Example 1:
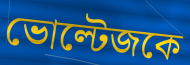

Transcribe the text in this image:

ভোল্টেজকে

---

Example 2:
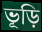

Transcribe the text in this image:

ভূড়ি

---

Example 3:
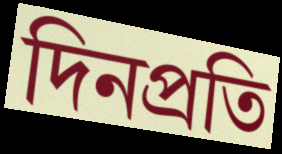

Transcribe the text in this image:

দিনপ্রতি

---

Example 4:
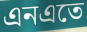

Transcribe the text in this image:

এনএতে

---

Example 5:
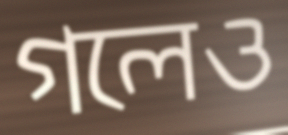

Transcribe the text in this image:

গলেও